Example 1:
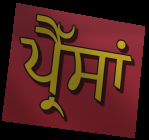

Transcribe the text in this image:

ਪ੍ਰੈੱਸਾਂ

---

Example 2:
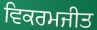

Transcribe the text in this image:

ਵਿਕਰਮਜੀਤ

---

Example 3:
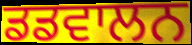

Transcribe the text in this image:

ਡਡਵਾਲਨ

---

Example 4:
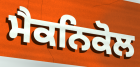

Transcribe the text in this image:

ਮੈਕਨਿਕੋਲ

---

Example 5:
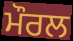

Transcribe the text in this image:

ਮੌਰਲ